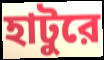
হাটুরে